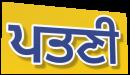
ਪਤਣੀ